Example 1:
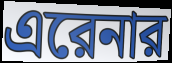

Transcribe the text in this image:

এরেনার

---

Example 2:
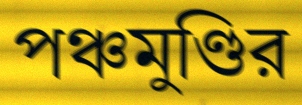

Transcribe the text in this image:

পঞ্চমুণ্ডির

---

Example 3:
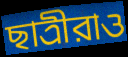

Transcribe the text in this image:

ছাত্রীরাও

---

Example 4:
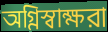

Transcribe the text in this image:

অগ্নিস্বাক্ষরা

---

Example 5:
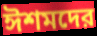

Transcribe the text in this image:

ঈশমদের